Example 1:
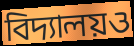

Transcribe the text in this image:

বিদ্যালয়ও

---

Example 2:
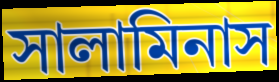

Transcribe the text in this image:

সালামিনাস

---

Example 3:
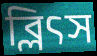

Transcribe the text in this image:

ব্লিৎস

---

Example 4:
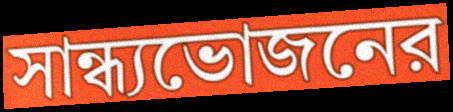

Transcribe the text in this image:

সান্ধ্যভোজনের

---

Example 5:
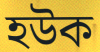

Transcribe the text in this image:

হউক